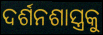
ଦର୍ଶନଶାସ୍ତ୍ରକୁ